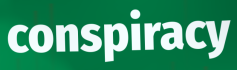
conspiracy